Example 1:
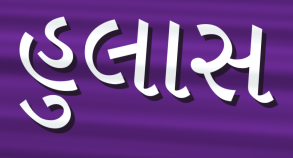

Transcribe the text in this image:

હુલાસ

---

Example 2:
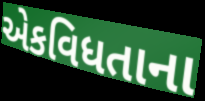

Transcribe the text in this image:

એકવિધતાના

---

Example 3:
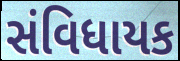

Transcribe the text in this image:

સંવિધાયક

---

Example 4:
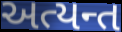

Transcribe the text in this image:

અત્યન્ત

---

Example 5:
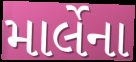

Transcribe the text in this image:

માર્લેના